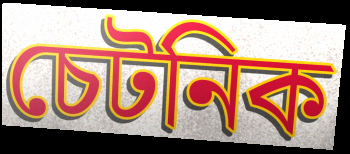
চেটনিক